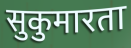
सुकुमारता